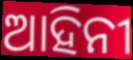
ଆହିନୀ